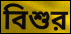
বিশুর